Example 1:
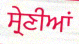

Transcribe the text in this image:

ਸ੍ਰੇਣੀਆਂ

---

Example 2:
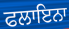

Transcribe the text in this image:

ਫਲਾਇਨਾ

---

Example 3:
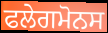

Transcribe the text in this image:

ਫਲੇਗਮੋਨਸ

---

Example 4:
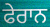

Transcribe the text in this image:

ਫੇਰਾਨ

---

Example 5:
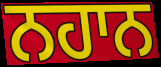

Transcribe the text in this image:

ਨਹਾਨ